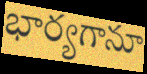
భార్యగానూ